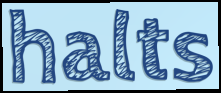
halts